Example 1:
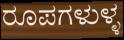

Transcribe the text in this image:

ರೂಪಗಳುಳ್ಳ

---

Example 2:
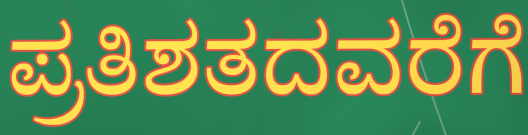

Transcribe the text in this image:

ಪ್ರತಿಶತದವರೆಗೆ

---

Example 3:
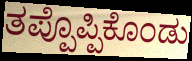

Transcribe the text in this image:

ತಪ್ಪೊಪ್ಪಿಕೊಂಡು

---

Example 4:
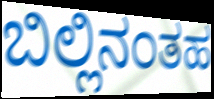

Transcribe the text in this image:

ಬಿಲ್ಲಿನಂತಹ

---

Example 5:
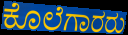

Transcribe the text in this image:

ಕೊಲೆಗಾರರು